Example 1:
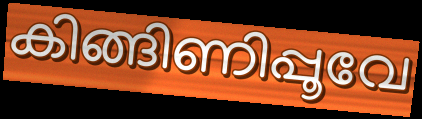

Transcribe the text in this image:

കിങ്ങിണിപ്പൂവേ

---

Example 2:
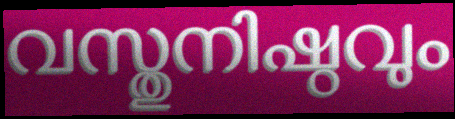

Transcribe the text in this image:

വസ്തുനിഷ്ഠവും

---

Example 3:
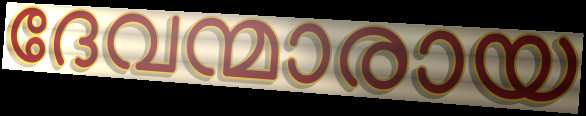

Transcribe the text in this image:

ദേവന്മാരായ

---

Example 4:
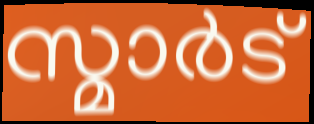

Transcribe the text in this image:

സ്മാർട്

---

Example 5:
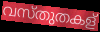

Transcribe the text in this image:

വസ്തുതകള്